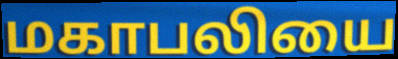
மகாபலியை